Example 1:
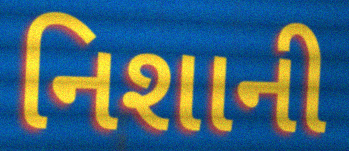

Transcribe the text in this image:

નિશાની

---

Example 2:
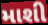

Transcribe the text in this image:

માશી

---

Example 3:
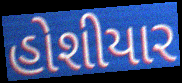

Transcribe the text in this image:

હોશીયાર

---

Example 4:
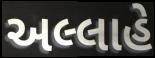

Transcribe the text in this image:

અલ્લાહે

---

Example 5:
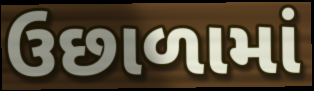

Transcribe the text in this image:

ઉછાળામાં